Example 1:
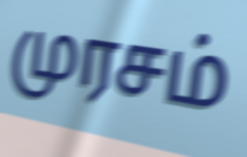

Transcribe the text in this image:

முரசம்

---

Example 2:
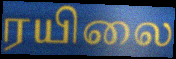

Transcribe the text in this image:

ரயிலை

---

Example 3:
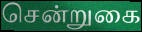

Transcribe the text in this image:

சென்றுகை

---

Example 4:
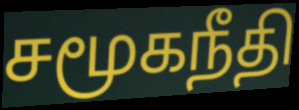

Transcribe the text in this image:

சமூகநீதி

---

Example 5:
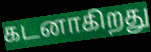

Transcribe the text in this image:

கடனாகிறது